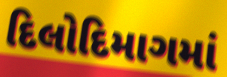
દિલોદિમાગમાં